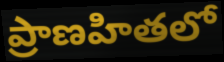
ప్రాణహితలో